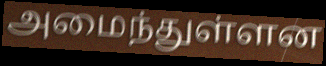
அமைந்துள்ளன